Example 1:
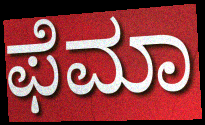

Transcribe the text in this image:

ಫೆಮಾ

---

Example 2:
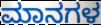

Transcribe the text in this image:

ಮಾನಗಳ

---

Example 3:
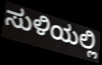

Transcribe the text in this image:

ಸುಳಿಯಲ್ಲಿ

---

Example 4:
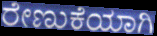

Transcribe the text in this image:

ರೇಣುಕೆಯಾಗಿ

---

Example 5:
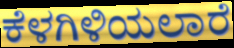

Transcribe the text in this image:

ಕೆಳಗಿಳಿಯಲಾರೆ